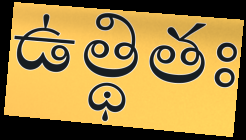
ఉత్థితః